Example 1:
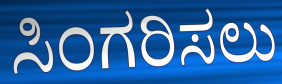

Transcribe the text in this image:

ಸಿಂಗರಿಸಲು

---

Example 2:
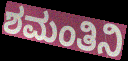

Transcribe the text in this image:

ಶಮಂತಿನಿ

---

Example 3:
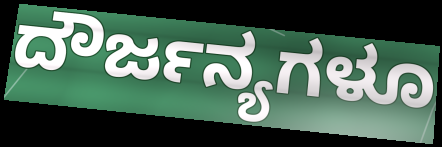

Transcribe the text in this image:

ದೌರ್ಜನ್ಯಗಳೂ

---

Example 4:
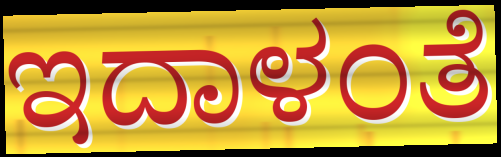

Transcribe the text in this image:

ಇದಾಳಂತೆ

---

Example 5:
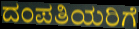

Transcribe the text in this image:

ದಂಪತಿಯರಿಗೆ